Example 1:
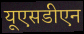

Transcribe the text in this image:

यूएसडीएन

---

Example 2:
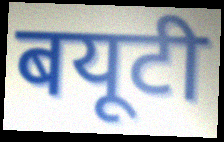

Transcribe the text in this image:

बयूटी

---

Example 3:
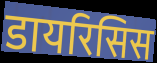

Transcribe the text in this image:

डायरिसिस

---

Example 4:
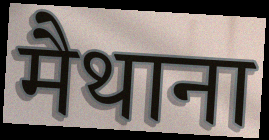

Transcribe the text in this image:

मैथाना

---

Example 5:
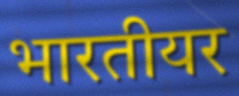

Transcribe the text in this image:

भारतीयर